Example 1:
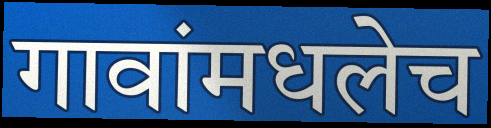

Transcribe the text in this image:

गावांमधलेच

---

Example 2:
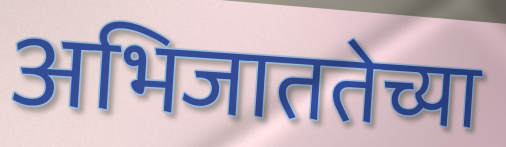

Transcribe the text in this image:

अभिजाततेच्या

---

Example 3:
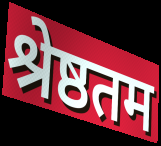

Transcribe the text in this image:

श्रेष्ठतम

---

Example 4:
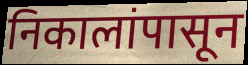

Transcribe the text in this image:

निकालांपासून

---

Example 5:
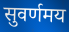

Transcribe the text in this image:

सुवर्णमय